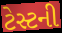
ટેસ્ટની